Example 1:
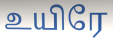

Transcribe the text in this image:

உயிரே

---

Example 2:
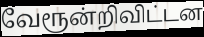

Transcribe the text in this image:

வேரூன்றிவிட்டன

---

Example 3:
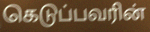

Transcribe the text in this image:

கெடுப்பவரின்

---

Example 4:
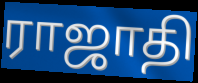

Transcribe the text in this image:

ராஜாதி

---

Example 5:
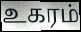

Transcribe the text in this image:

உகரம்